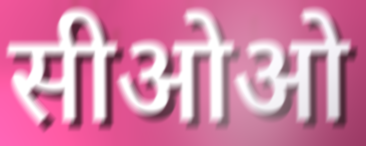
सीओओ